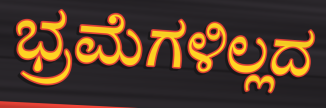
ಭ್ರಮೆಗಳಿಲ್ಲದ